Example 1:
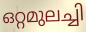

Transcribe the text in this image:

ഒറ്റമുലച്ചി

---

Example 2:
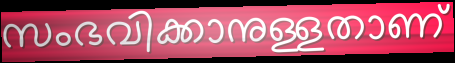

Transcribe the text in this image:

സംഭവിക്കാനുള്ളതാണ്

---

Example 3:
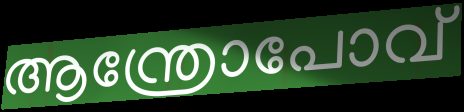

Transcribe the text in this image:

ആന്ത്രോപോവ്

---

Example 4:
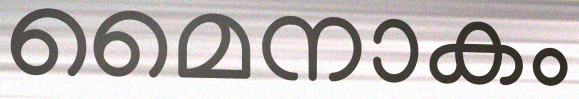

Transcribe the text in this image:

മൈനാകം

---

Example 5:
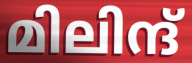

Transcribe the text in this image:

മിലിന്ദ്